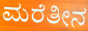
ಮರೆತೀನ